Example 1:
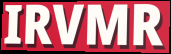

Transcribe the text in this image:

IRVMR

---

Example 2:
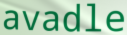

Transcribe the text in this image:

avadle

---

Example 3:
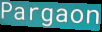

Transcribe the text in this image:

Pargaon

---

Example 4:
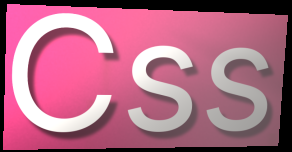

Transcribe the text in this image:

Css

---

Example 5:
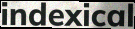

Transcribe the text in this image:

indexical